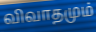
விவாதமும்